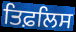
ਤਿਫ਼ਲਿਸ